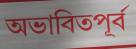
অভাবিতপূর্ব